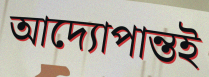
আদ্যোপান্তই